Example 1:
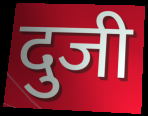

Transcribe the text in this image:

दुजी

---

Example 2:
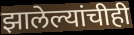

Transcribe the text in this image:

झालेल्यांचीही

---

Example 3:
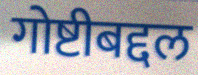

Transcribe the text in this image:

गोष्टीबद्दल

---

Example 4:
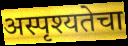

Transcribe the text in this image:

अस्पृश्यतेचा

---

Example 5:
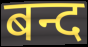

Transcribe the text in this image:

बन्द